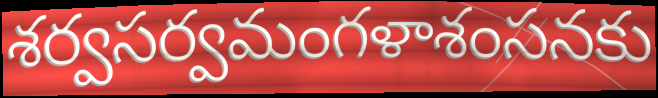
శర్వసర్వమంగళాశంసనకు